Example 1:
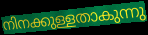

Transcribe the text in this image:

നിനക്കുള്ളതാകുന്നു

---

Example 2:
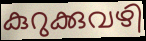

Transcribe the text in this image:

കുറുക്കുവഴി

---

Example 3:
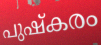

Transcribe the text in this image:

പുഷ്കരം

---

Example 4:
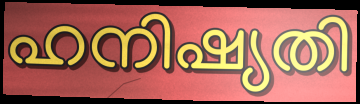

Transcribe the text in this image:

ഹനിഷ്യതി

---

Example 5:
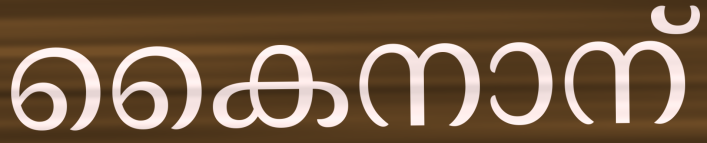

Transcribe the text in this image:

കൈനാന്